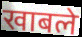
खाबले